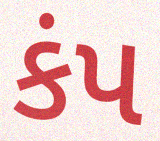
કંપ